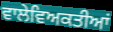
ਵਾਲੇਵਿਅਕਤੀਆਂ